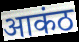
आकंठ